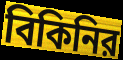
বিকিনির